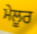
ਮੇਲੂਰ